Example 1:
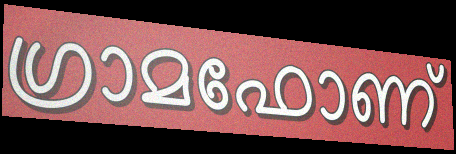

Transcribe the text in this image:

ഗ്രാമഫോണ്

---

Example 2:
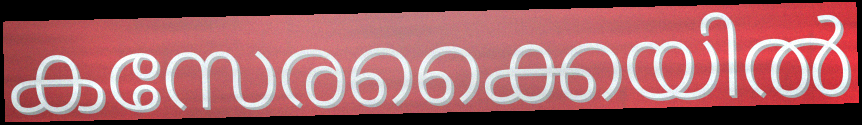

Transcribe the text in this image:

കസേരക്കൈയിൽ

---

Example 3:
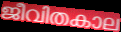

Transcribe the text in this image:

ജീവിതകാല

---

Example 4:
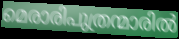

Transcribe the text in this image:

മെരാരിപുത്രന്മാരിൽ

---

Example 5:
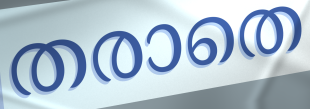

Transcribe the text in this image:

തരാതെ